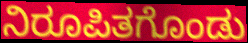
ನಿರೂಪಿತಗೊಂಡು